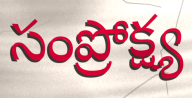
సంప్రోక్ష్య